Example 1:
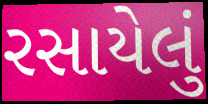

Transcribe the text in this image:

રસાયેલું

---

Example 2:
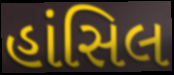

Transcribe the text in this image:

હાંસિલ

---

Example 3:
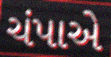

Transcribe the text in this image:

ચંપાએ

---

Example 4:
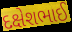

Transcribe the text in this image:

દક્ષેશભાઈ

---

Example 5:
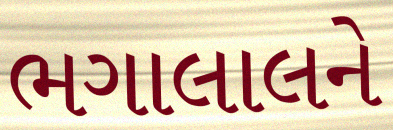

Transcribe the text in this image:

ભગાલાલને